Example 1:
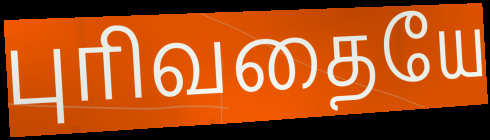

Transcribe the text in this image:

புரிவதையே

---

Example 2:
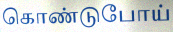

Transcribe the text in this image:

கொண்டுபோய்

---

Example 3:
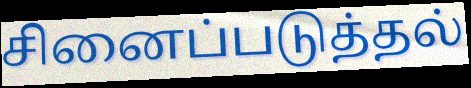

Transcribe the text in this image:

சினைப்படுத்தல்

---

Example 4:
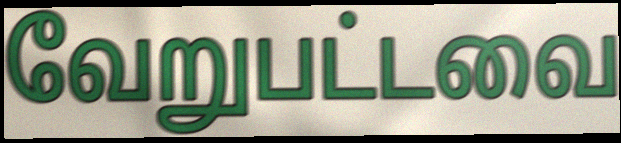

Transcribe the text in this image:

வேறுபட்டவை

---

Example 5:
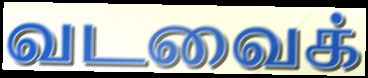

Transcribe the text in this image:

வடவைக்